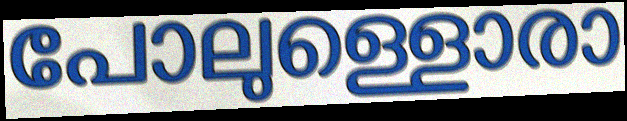
പോലുള്ളൊരാ